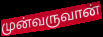
முன்வருவான்